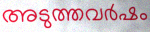
അടുത്തവർഷം